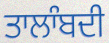
ਤਾਲਾੰਬਦੀ